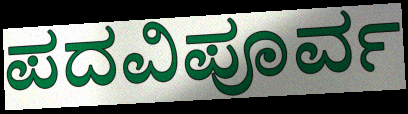
ಪದವಿಪೂರ್ವ